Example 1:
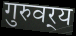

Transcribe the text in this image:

गुरुवर्य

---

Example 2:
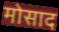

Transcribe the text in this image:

मोसाद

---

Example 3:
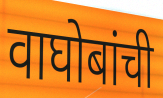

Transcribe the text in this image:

वाघोबांची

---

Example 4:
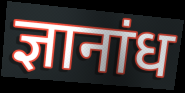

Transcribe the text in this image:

ज्ञानांध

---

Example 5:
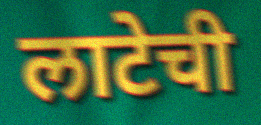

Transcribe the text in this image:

लाटेची